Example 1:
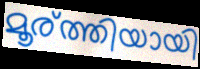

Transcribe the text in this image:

മൂര്ത്തിയായി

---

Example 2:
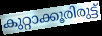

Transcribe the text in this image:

കുറ്റാക്കൂരിരുട്ട്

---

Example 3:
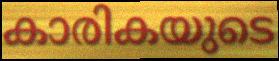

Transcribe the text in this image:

കാരികയുടെ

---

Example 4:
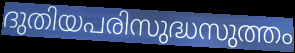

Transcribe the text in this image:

ദുതിയപരിസുദ്ധസുത്തം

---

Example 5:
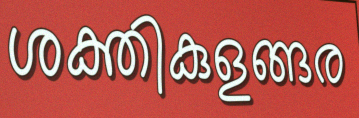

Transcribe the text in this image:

ശക്തികുളങ്ങര